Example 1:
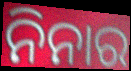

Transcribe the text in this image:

ନିନାର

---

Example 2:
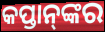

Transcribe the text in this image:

କପ୍ତାନ୍‌ଙ୍କର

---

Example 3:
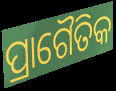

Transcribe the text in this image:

ପ୍ରାଗୈତିକ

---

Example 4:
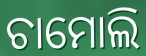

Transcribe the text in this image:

ଚାମୋଲି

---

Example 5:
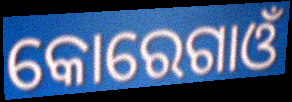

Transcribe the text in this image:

କୋରେଗାଓଁ